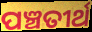
ପଞ୍ଚତୀର୍ଥ